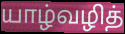
யாழ்வழித்